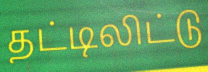
தட்டிலிட்டு